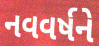
નવવર્ષને